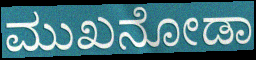
ಮುಖನೋಡಾ